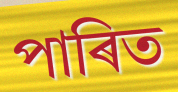
পাৰিত